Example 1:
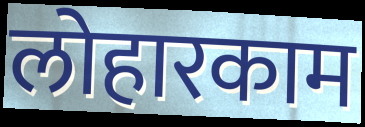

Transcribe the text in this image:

लोहारकाम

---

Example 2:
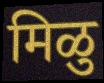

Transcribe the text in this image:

मिळु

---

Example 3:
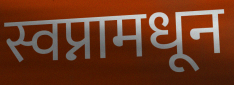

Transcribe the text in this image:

स्वप्नामधून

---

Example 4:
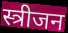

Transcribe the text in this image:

स्त्रीजन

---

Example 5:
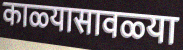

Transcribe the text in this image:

काळ्यासावळ्या